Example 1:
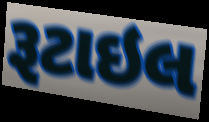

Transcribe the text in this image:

રૂટાઇલ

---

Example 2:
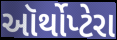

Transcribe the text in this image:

ઑર્થોપ્ટેરા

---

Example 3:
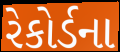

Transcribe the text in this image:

રેકોર્ડના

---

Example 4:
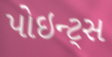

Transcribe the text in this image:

પોઇન્ટ્સ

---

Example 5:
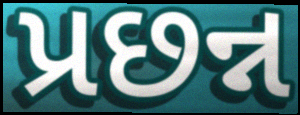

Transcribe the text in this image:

પ્રછન્ન